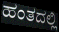
ಹಂತದಲ್ಲಿ